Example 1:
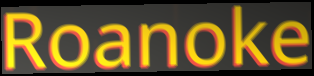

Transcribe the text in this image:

Roanoke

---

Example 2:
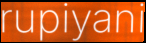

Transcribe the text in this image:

rupiyani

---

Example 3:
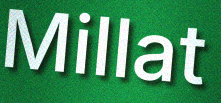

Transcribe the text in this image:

Millat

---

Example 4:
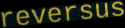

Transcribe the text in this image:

reversus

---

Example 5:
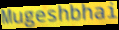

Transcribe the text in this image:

Mugeshbhai